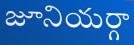
జూనియర్గా